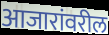
आजारांवरील